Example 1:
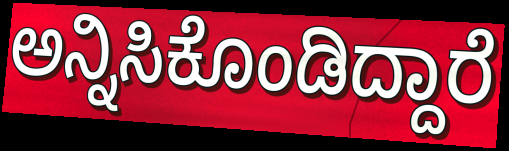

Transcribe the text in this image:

ಅನ್ನಿಸಿಕೊಂಡಿದ್ದಾರೆ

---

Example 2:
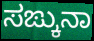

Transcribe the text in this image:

ಸಙ್ಕುನಾ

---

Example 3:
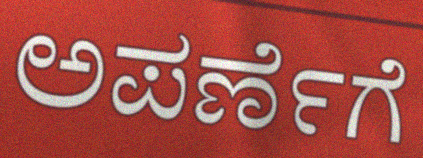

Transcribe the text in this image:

ಅಪರ್ಣೆಗೆ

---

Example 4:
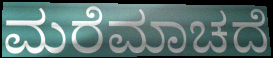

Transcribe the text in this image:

ಮರೆಮಾಚದೆ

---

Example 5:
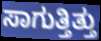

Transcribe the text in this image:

ಸಾಗುತ್ತಿತ್ತು